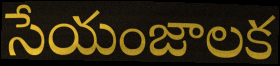
సేయంజాలక